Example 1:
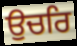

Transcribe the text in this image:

ਉਚਰਿ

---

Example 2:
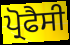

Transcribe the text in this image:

ਪ੍ਰੋਫੈਸੀ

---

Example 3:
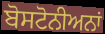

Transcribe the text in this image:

ਬੋਸਟੋਨੀਅਨਾਂ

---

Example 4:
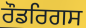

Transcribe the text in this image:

ਰੌਡਰਿਗਸ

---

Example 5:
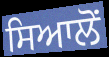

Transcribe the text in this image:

ਸਿਆਲੋਂ